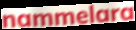
nammelara